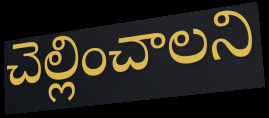
చెల్లించాలని